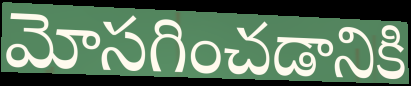
మోసగించడానికి